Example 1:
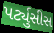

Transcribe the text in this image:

પર્ટ્યુસીસ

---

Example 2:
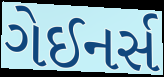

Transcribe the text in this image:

ગેઈનર્સ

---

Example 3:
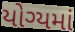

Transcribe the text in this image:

યોગ્યમાં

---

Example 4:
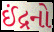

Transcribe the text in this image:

ઈંદ્રનો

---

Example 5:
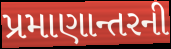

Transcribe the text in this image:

પ્રમાણાન્તરની